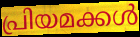
പ്രിയമക്കൾ